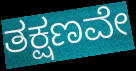
ತಕ್ಷಣವೇ